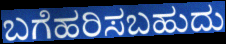
ಬಗೆಹರಿಸಬಹುದು